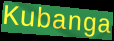
Kubanga